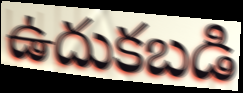
ఉదుకబడి